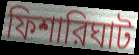
ফিশারিঘাট